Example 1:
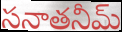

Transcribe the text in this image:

సనాతనీమ్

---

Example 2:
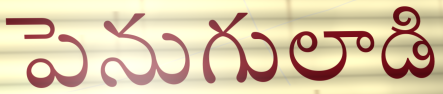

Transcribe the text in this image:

పెనుగులాడి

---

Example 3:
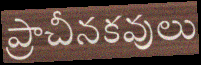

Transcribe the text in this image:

ప్రాచీనకవులు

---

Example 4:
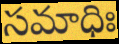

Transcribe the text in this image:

సమాధిః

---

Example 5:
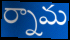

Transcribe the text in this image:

ర్నామ